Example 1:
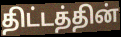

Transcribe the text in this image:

திட்டத்தின்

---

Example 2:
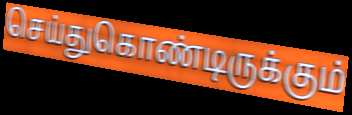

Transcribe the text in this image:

செய்துகொண்டிருக்கும்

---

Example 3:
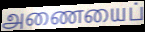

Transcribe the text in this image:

அணையைப்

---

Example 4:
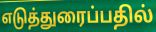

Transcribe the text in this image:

எடுத்துரைப்பதில்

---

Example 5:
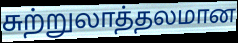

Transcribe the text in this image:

சுற்றுலாத்தலமான